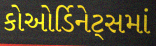
કોઓર્ડિનેટ્સમાં